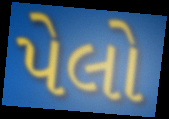
પેલો